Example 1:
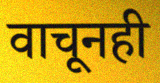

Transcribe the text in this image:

वाचूनही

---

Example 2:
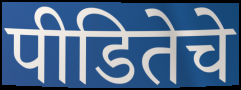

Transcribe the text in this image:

पीडितेचे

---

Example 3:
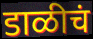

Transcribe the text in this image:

डाळीचं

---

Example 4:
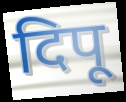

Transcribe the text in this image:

दिपू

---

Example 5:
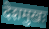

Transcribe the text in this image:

देशमुखः